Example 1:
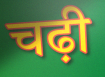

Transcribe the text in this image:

चढ़ी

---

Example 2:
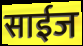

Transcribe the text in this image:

साईज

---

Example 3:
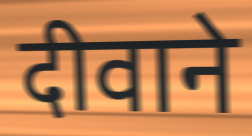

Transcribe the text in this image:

दीवाने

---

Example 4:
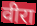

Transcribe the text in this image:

वीरा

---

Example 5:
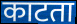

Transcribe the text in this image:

काटता